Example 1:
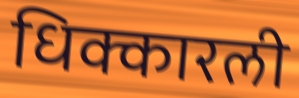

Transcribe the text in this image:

धिक्कारली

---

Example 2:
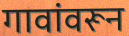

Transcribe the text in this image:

गावांवरून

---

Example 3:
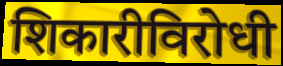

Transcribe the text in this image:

शिकारीविरोधी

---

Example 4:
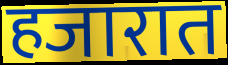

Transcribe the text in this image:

हजारात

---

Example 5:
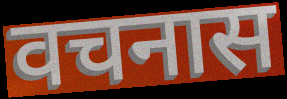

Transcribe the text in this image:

वचनास